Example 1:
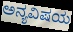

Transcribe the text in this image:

ಅನ್ಯವಿಷಯ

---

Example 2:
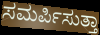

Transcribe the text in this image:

ಸಮರ್ಪಿಸುತ್ತಾ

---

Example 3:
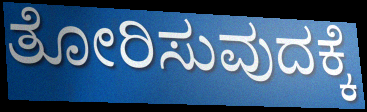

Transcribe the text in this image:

ತೋರಿಸುವುದಕ್ಕೆ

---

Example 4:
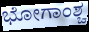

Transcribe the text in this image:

ಭೋಗಾಂಶ್ಚ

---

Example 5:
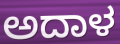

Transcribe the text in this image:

ಅದಾಳ